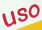
uso